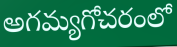
అగమ్యగోచరంలో